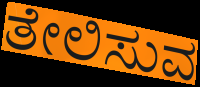
ತೇಲಿಸುವ